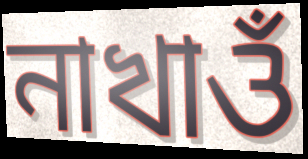
নাখাওঁ